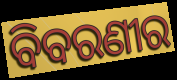
ବିବରଣୀର